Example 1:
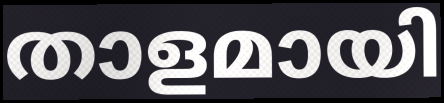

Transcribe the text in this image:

താളമായി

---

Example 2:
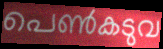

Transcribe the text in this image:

പെൺകടുവ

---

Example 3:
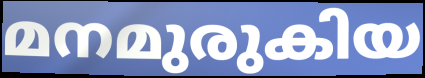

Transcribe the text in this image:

മനമുരുകിയ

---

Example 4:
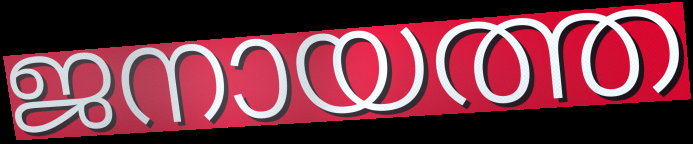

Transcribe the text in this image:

ജനായത്ത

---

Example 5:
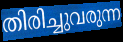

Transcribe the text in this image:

തിരിച്ചുവരുന്ന